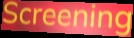
Screening